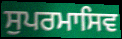
ਸੁਪਰਮਾਸਿਵ